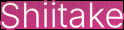
Shiitake